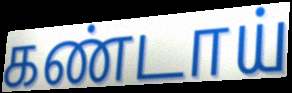
கண்டாய்